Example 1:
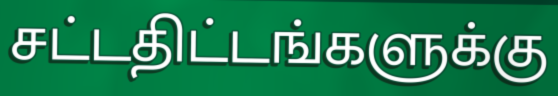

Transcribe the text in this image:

சட்டதிட்டங்களுக்கு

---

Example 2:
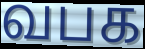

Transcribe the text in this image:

வபக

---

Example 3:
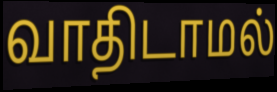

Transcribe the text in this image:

வாதிடாமல்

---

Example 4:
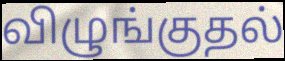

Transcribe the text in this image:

விழுங்குதல்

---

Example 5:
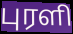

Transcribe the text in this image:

புரளி